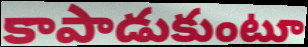
కాపాడుకుంటూ